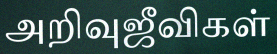
அறிவுஜீவிகள்